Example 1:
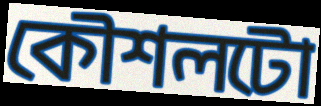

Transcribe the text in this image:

কৌশলটো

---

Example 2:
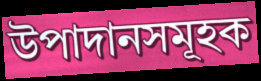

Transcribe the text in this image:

উপাদানসমূহক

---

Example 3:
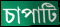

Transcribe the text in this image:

চাপাটি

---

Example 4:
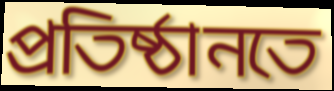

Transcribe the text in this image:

প্ৰতিষ্ঠানতে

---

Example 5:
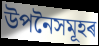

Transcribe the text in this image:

উপনৈসমূহৰ